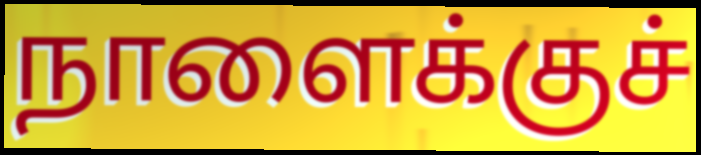
நாளைக்குச்